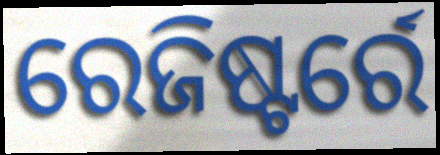
ରେଜିଷ୍ଟର୍ରେ